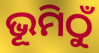
ଭୂମିଠୁଁ